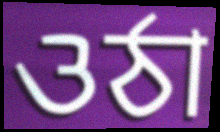
ওঠা